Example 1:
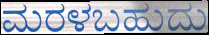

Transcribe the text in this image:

ಮರಳಬಹುದು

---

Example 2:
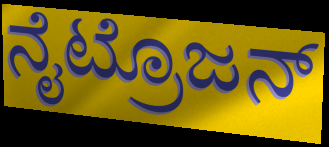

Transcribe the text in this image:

ನೈಟ್ರೊಜನ್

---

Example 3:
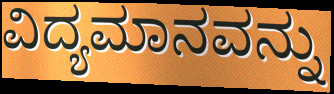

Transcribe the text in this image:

ವಿದ್ಯಮಾನವನ್ನು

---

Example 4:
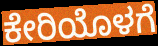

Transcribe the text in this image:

ಕೇರಿಯೊಳಗೆ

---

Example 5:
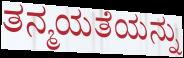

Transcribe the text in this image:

ತನ್ಮಯತೆಯನ್ನು